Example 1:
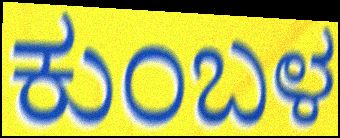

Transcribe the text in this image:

ಕುಂಬಳ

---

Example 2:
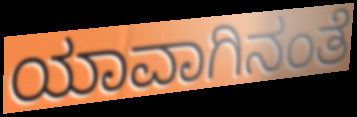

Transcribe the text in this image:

ಯಾವಾಗಿನಂತೆ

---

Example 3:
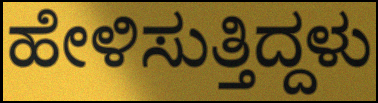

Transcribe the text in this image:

ಹೇಳಿಸುತ್ತಿದ್ದಳು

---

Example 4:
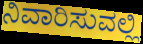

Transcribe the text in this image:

ನಿವಾರಿಸುವಲ್ಲಿ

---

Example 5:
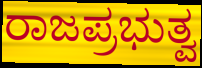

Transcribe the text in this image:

ರಾಜಪ್ರಭುತ್ವ